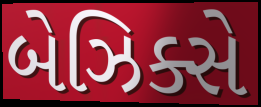
બેઝિક્સે